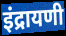
इंद्रायणी